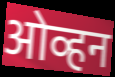
ओव्हन